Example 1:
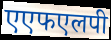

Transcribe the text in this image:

एएफएलपी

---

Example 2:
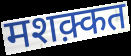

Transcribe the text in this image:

मशक़्कत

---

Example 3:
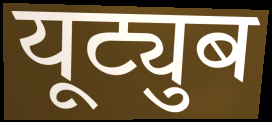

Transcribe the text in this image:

यूट्युब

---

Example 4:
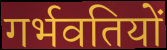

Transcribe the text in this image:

गर्भवतियों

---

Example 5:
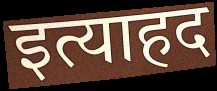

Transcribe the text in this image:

इत्याहद